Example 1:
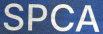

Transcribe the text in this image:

SPCA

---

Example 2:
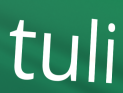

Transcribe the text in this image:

tuli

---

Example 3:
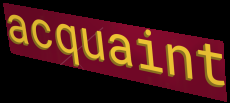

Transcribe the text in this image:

acquaint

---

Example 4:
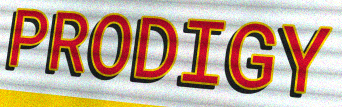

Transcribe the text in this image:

PRODIGY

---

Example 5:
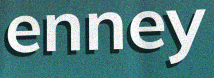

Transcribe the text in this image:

enney